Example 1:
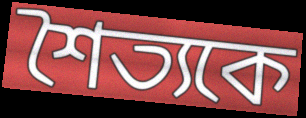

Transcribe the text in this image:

শৈত্যকে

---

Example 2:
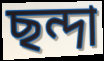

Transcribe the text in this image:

ছন্দা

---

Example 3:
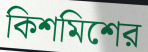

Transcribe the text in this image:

কিশমিশের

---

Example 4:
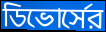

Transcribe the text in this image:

ডিভোর্সের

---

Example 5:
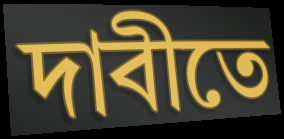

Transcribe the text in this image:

দাবীতে